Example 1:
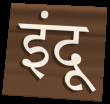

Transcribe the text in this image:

इंदू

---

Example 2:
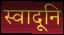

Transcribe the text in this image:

स्वादूनि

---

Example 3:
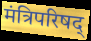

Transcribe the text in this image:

मंत्रिपरिषद्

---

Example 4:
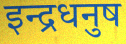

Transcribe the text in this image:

इन्‍द्रधनुष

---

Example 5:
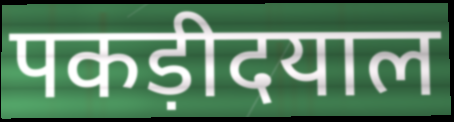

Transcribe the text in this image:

पकड़ीदयाल